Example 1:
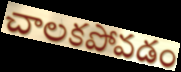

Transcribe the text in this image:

చాలకపోవడం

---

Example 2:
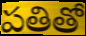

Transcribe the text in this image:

పతితో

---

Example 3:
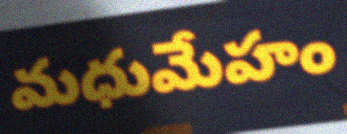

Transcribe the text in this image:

మధుమేహం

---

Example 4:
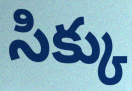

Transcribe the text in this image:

సిక్కు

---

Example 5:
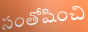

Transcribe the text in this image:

సంతోషించి